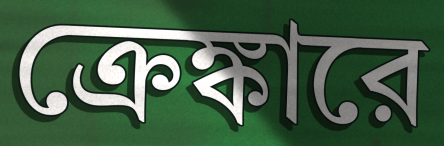
ক্রেঙ্কারে